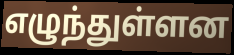
எழுந்துள்ளன